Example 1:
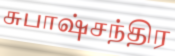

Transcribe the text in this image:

சுபாஷ்சந்திர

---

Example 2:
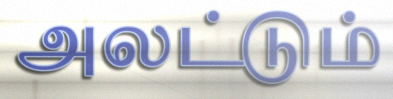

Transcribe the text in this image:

அலட்டும்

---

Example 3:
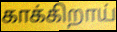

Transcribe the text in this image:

காக்கிறாய்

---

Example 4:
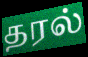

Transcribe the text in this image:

தரல்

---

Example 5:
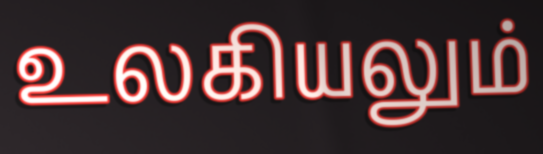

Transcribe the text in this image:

உலகியலும்